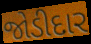
જોડીદાર